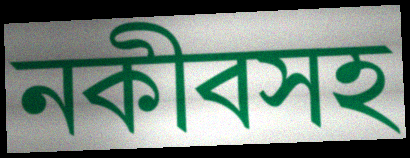
নকীবসহ